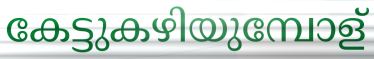
കേട്ടുകഴിയുമ്പോള്